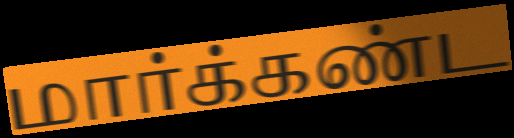
மார்க்கண்ட